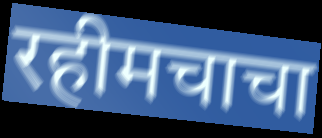
रहीमचाचा